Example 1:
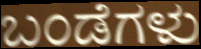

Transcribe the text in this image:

ಬಂಡೆಗಳು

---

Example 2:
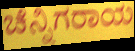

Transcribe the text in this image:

ಚೆನ್ನಿಗರಾಯ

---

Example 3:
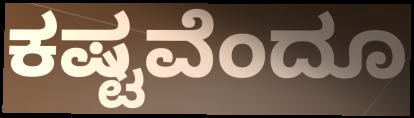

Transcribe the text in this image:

ಕಷ್ಟವೆಂದೂ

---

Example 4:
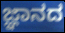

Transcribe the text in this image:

ಜ್ಞಾನದ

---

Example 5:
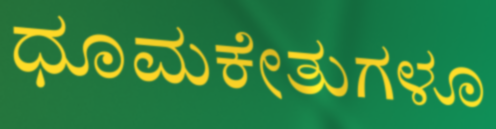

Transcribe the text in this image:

ಧೂಮಕೇತುಗಳೂ